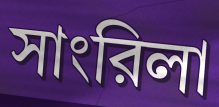
সাংরিলা